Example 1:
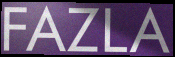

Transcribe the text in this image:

FAZLA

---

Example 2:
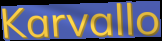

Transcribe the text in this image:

Karvallo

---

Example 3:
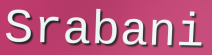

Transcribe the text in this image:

Srabani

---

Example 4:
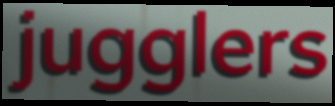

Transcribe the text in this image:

jugglers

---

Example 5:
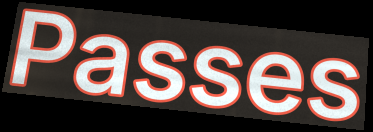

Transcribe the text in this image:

Passes